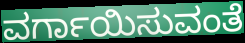
ವರ್ಗಾಯಿಸುವಂತೆ